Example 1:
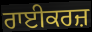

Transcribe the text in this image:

ਰਾਈਕਰਜ਼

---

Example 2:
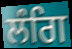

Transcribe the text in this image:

ਲੰਗਿ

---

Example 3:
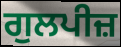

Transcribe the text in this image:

ਗੁਲਪੀਜ਼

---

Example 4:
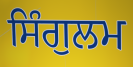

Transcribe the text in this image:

ਸਿੰਗੁਲਮ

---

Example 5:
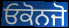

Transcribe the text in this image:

ਓਕੋਨਜੋ